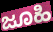
ಜೂಹಿ